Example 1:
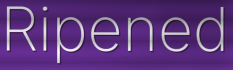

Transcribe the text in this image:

Ripened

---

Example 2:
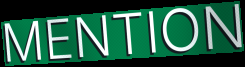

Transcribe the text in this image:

MENTION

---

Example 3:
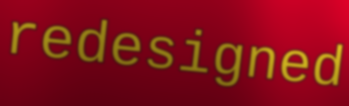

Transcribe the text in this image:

redesigned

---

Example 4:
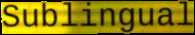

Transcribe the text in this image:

Sublingual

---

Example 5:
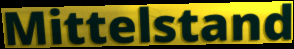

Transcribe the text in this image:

Mittelstand